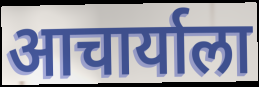
आचार्याला